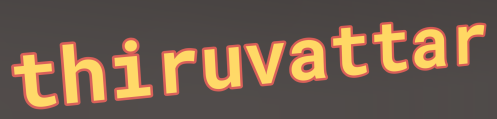
thiruvattar